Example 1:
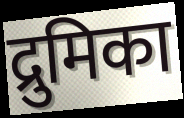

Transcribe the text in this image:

द्रुमिका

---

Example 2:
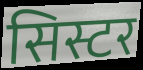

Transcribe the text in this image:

सिस्टर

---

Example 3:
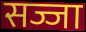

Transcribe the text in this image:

सज्जा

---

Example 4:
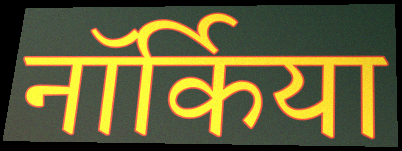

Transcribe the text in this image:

नॉर्किया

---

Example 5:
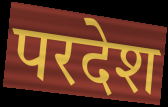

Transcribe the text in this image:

परदेश